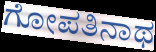
ಗೋಪತಿನಾಥ